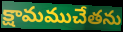
క్షామముచేతను